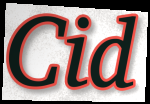
Cid